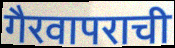
गैरवापराची